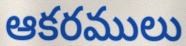
ఆకరములు